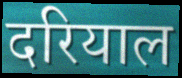
दरियाल